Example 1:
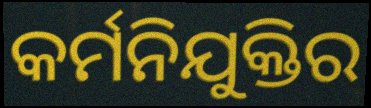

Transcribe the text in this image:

କର୍ମନିଯୁକ୍ତିର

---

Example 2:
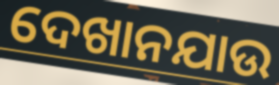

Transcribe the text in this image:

ଦେଖାନଯାଉ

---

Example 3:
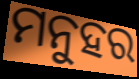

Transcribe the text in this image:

ମନୁହର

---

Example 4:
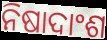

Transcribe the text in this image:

ନିଷାଦାଂଶ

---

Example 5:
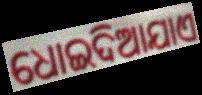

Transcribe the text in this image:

ଧୋଇଦିଆଯାଏ